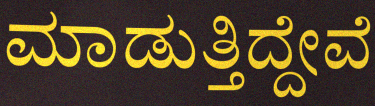
ಮಾಡುತ್ತಿದ್ದೇವೆ